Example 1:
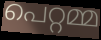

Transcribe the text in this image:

പെറ്റമ്മ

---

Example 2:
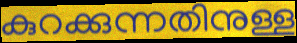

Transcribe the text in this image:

കുറക്കുന്നതിനുള്ള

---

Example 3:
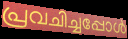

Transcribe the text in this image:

പ്രവചിച്ചപ്പോൾ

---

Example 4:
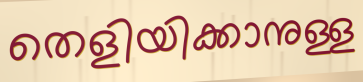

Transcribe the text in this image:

തെളിയിക്കാനുള്ള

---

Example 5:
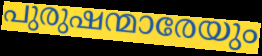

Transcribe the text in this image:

പുരുഷന്മാരേയും